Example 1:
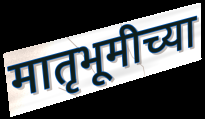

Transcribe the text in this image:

मातृभूमीच्या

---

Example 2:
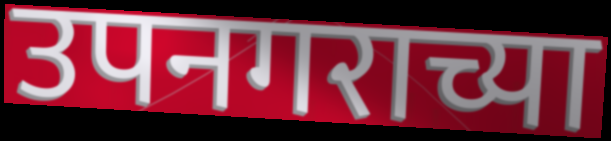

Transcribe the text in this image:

उपनगराच्या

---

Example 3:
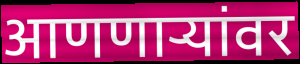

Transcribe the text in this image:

आणणाऱ्यांवर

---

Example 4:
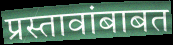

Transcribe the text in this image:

प्रस्तावांबाबत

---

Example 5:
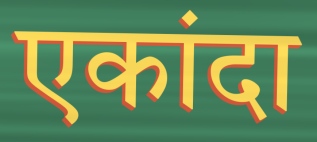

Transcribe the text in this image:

एकांदा